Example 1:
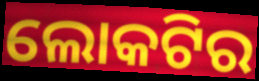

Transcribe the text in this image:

ଲୋକଟିର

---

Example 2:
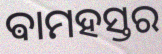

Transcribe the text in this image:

ଵାମହସ୍ତର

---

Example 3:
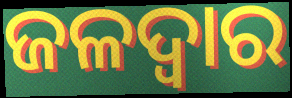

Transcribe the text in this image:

ଜଳଦ୍ୱାର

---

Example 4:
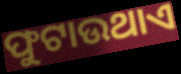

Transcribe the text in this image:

ଫୁଟାଉଥାଏ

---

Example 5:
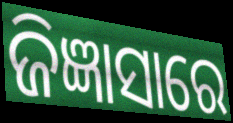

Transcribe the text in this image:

ଜିଜ୍ଞାସାରେ